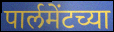
पार्लमेंटच्या